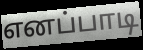
எனப்பாடி